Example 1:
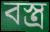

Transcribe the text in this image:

বস্ত্র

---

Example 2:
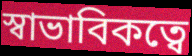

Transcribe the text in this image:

স্বাভাবিকত্বে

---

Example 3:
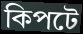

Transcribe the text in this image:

কিপটে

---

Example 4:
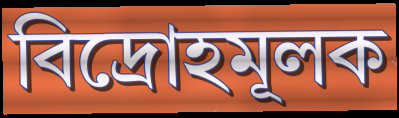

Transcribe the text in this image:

বিদ্রোহমূলক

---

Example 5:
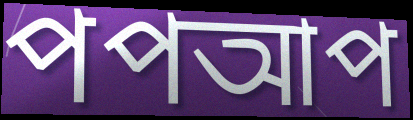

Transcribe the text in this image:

পপআপ